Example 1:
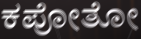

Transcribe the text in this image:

ಕಪೋತೋ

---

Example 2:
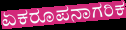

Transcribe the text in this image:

ಏಕರೂಪನಾಗರಿಕ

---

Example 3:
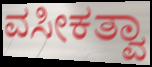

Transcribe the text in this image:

ವಸೀಕತ್ವಾ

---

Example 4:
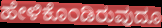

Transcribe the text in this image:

ಹೇಳಿಕೊಂಡಿರುವುದೂ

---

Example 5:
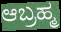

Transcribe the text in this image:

ಆಬ್ರಹ್ಮ